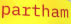
partham